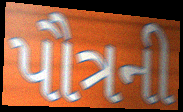
પૌત્રની